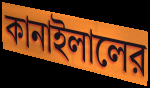
কানাইলালের